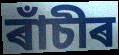
ৰাঁচীৰ